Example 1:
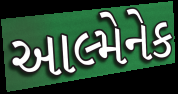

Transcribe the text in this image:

આલ્મેનેક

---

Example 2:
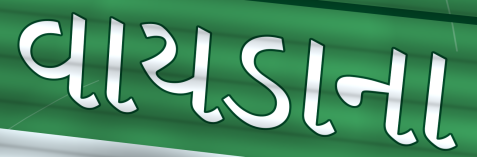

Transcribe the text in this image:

વાયડાના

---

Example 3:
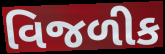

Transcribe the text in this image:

વિજળીક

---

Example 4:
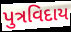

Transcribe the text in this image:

પુત્રવિદાય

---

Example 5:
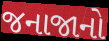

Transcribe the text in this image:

જનાજાનો